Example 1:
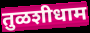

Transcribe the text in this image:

तुळशीधाम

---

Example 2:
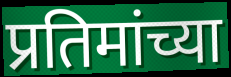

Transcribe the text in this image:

प्रतिमांच्या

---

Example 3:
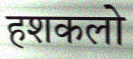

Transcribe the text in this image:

हशकलो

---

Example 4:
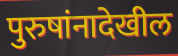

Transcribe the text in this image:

पुरुषांनादेखील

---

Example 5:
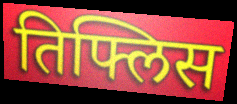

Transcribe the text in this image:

तिफ्लिस